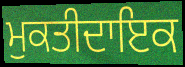
ਮੁਕਤੀਦਾਇਕ